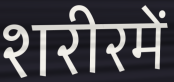
शरीरमें